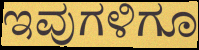
ಇವುಗಳಿಗೂ